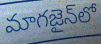
మాగజైన్‌లో